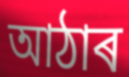
আঠাৰ